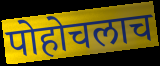
पोहोचलाच